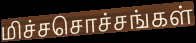
மிச்சசொச்சங்கள்